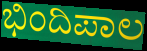
ಭಿಂದಿಪಾಲ